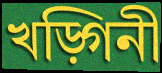
খড়্গিনী